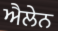
ਐਲੇਨ